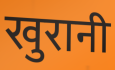
खुरानी